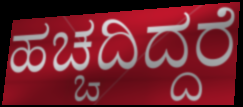
ಹಚ್ಚದಿದ್ದರೆ